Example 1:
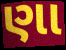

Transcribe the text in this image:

ણા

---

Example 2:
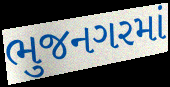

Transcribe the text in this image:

ભુજનગરમાં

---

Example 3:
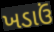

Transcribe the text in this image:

ખડાઉં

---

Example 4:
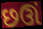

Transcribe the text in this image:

છઊં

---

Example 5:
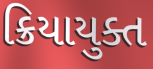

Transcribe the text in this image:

ક્રિયાયુક્ત